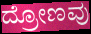
ದ್ರೋಣವು